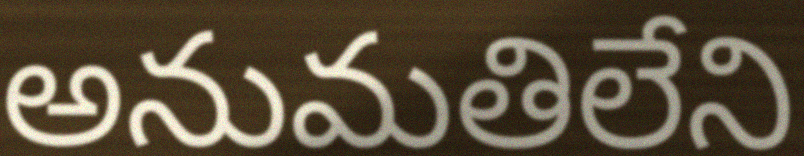
అనుమతిలేని